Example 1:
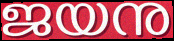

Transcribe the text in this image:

ജയനു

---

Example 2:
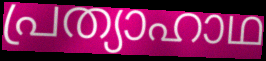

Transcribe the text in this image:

പ്രത്യാഹാഥ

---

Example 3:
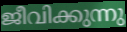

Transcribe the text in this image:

ജീവിക്കുന്നു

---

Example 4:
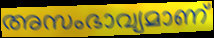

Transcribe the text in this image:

അസംഭാവ്യമാണ്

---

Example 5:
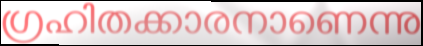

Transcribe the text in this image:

ഗ്രഹിതക്കാരനാണെന്നു